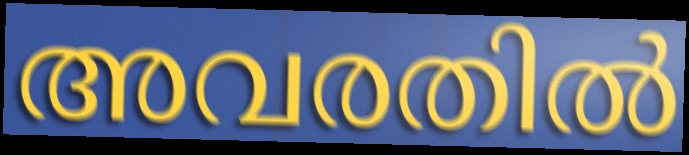
അവരതിൽ